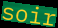
soir